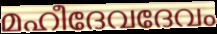
മഹീദേവദേവം